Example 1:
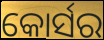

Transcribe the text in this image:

କୋର୍ସର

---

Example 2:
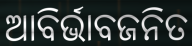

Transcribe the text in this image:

ଆବିର୍ଭାବଜନିତ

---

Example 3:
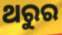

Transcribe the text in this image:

ଥରୁର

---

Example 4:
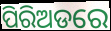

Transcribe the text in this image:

ପିରିଅଡରେ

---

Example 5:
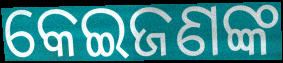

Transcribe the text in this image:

କେଇଜଣଙ୍କ